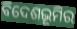
ବିଦେଶଭୂମିର